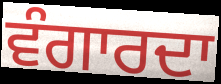
ਵੰਗਾਰਦਾ